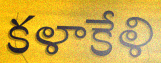
కళాకేళి